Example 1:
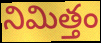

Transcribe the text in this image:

నిమిత్తం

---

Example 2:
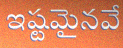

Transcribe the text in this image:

ఇష్టమైనవే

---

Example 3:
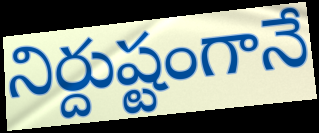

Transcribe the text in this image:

నిర్దుష్టంగానే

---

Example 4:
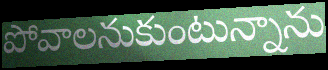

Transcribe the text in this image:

పోవాలనుకుంటున్నాను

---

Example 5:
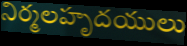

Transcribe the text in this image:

నిర్మలహృదయులు